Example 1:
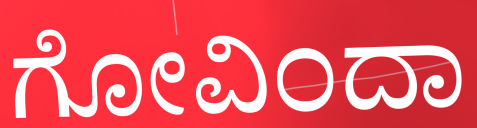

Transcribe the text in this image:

ಗೋವಿಂದಾ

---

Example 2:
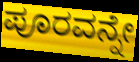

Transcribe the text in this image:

ಪೂರವನ್ನೇ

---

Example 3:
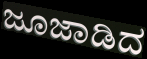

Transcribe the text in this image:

ಜೂಜಾಡಿದ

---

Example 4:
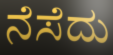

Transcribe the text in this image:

ನೆಸೆದು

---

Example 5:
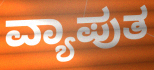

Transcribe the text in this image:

ವ್ಯಾಪುತ